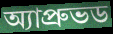
অ্যাপ্রুভড